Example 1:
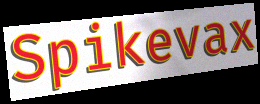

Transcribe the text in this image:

Spikevax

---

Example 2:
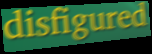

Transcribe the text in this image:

disfigured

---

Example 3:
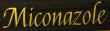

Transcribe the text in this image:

Miconazole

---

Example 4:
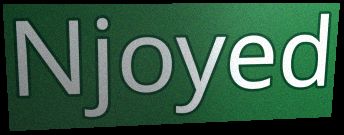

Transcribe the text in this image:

Njoyed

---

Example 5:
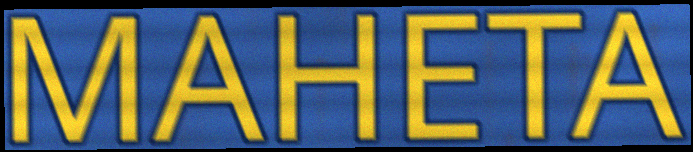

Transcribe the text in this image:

MAHETA